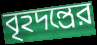
বৃহদন্ত্রের